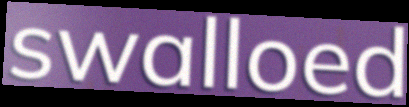
swalloed